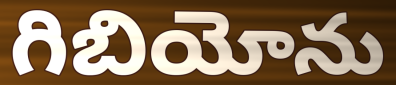
గిబియోను